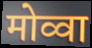
मोव्वा